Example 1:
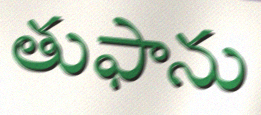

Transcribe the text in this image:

తుఫాను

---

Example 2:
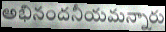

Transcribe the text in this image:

అభినందనీయమన్నారు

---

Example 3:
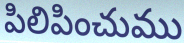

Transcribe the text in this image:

పిలిపించుము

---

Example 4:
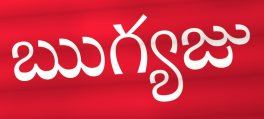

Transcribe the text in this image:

ఋగ్యజు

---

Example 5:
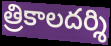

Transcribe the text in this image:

త్రికాలదర్శి